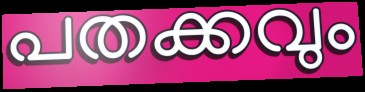
പതക്കവും